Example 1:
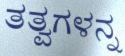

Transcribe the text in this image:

ತತ್ವಗಳನ್ನ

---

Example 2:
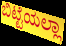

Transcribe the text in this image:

ಬಿಟ್ಟೆಯಲ್ಲಾ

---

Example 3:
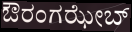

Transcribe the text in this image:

ಔರಂಗಝೇಬ್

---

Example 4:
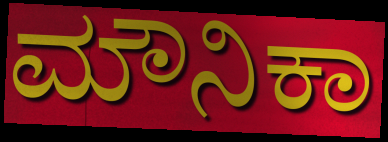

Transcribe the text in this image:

ಮೌನಿಕಾ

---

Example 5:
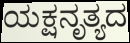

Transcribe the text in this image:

ಯಕ್ಷನೃತ್ಯದ